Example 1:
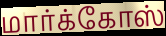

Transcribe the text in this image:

மார்க்கோஸ்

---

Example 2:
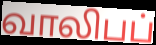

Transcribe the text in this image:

வாலிபப்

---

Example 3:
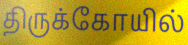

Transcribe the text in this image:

திருக்கோயில்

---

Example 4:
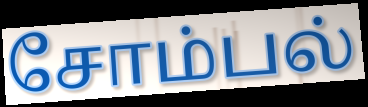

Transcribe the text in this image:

சோம்பல்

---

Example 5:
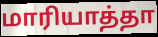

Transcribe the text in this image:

மாரியாத்தா